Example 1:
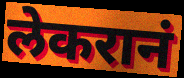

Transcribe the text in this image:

लेकरानं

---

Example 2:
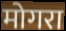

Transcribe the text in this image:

मोगरा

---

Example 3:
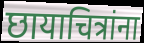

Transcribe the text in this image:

छायाचित्रांना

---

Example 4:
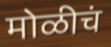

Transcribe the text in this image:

मोळीचं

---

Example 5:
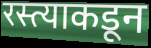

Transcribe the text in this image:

रस्त्याकडून